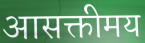
आसक्तीमय